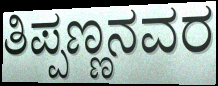
ತಿಪ್ಪಣ್ಣನವರ